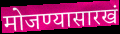
मोजण्यासारखं